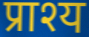
प्राश्य